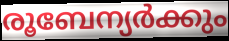
രൂബേന്യർക്കും